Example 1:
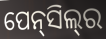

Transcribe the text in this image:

ପେନ୍‍ସିଲ୍‍ର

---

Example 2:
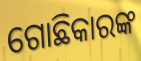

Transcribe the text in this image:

ଗୋଛିକାରଙ୍କ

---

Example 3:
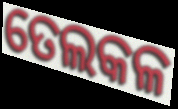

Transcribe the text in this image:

ତେଲକଳ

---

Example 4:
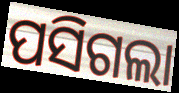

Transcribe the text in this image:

ପସିଗଲା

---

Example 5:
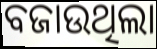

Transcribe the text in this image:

ବଜାଉଥିଲା